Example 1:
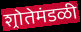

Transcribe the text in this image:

श्रोतेमंडळी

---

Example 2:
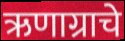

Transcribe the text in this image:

ऋणाग्राचे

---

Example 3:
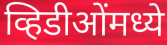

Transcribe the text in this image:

व्हिडीओंमध्ये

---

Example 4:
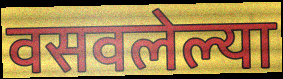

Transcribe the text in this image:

वसवलेल्या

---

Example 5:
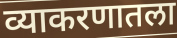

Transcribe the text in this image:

व्याकरणातला